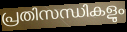
പ്രതിസന്ധികളും